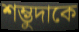
শম্ভুদাকে